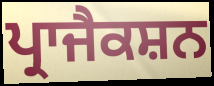
ਪ੍ਰਾਜੈਕਸ਼ਨ